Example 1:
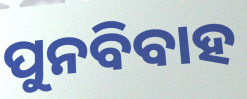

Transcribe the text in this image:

ପୁନବିବାହ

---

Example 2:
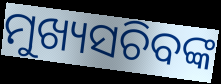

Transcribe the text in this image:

ମୁଖ୍ୟସଚିବଙ୍କ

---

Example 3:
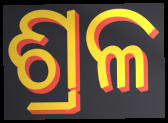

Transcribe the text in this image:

ଶ୍ରଳ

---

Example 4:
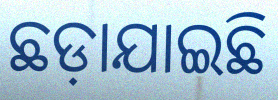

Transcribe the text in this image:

ଛଡ଼ାଯାଇଛି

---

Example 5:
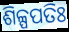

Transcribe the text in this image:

ଶିଳ୍ପପତିଃ